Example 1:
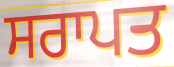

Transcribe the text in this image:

ਸਰਾਪਤ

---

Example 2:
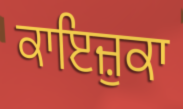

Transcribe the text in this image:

ਕਾਇਜ਼ੁਕਾ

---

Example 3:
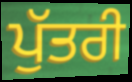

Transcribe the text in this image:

ਪੁੱਤਰੀ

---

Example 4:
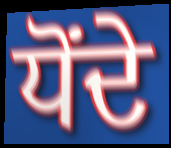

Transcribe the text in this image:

ਧੋਂਦੇ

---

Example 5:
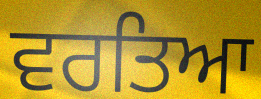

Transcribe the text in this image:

ਵਰਤਿਆ